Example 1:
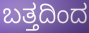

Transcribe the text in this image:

ಬತ್ತದಿಂದ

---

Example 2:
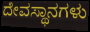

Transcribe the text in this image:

ದೇವಸ್ಥಾನಗಳು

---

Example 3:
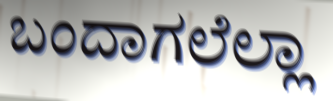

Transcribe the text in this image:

ಬಂದಾಗಲೆಲ್ಲಾ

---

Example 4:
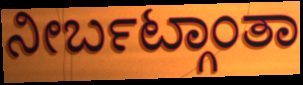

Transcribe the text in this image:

ನೀರ್ಬಟ್ಗಾಂತಾ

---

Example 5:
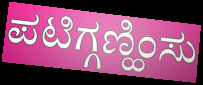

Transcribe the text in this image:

ಪಟಿಗ್ಗಣ್ಹಿಂಸು